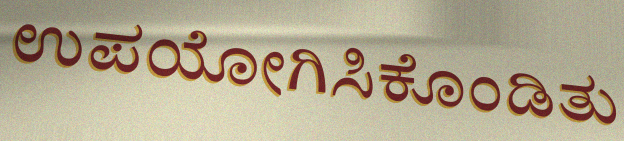
ಉಪಯೋಗಿಸಿಕೊಂಡಿತು